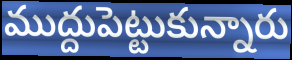
ముద్దుపెట్టుకున్నారు